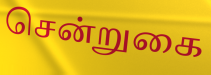
சென்றுகை